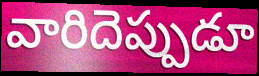
వారిదెప్పుడూ